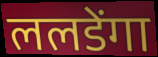
ललडेंगा